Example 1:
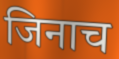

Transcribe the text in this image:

जिनाच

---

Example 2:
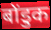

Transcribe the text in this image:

बोंडुक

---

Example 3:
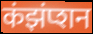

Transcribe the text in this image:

कंझंप्शन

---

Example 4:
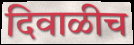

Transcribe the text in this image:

दिवाळीच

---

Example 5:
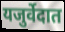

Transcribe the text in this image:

यजुर्वेदात